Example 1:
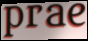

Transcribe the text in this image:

prae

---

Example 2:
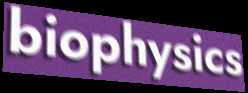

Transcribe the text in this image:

biophysics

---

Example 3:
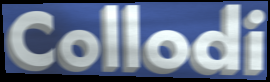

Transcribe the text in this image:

Collodi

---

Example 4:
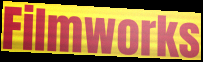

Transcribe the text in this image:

Filmworks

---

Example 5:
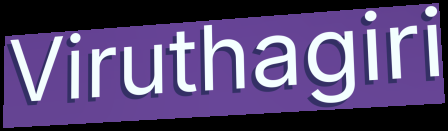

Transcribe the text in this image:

Viruthagiri